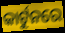
କାର୍ଟୁନରେ